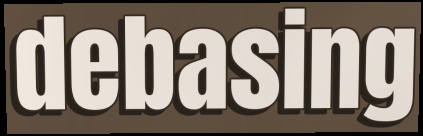
debasing